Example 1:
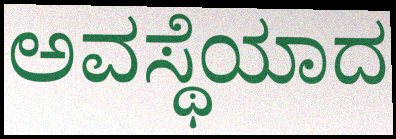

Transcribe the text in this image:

ಅವಸ್ಥೆಯಾದ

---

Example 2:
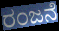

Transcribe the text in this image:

ರಂಜನೆ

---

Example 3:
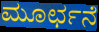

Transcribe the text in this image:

ಮೂರ್ಛನೆ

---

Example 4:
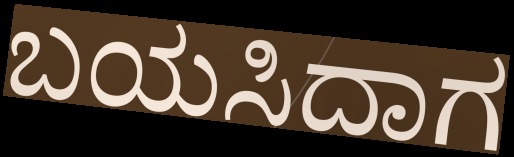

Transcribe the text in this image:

ಬಯಸಿದಾಗ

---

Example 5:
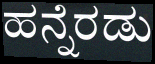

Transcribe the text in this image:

ಹನ್ನೆರಡು